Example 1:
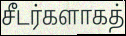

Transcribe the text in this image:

சீடர்களாகத்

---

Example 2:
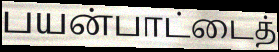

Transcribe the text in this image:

பயன்பாட்டைத்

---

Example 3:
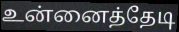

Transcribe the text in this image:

உன்னைத்தேடி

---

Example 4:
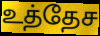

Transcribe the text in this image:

உத்தேச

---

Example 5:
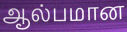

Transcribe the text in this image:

ஆல்பமான